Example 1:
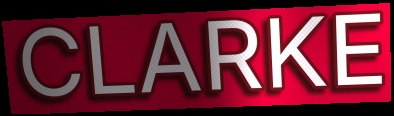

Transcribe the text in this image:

CLARKE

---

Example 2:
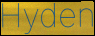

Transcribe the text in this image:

Hyden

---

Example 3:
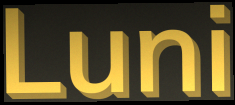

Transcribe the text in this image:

Luni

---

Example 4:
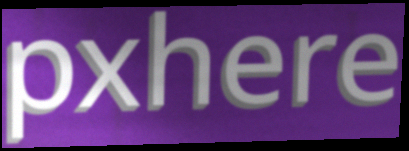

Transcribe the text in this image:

pxhere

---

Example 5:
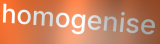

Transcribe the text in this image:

homogenise